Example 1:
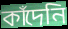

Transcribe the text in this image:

কাঁদেনি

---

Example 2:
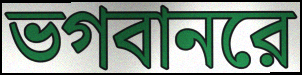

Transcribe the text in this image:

ভগবানরে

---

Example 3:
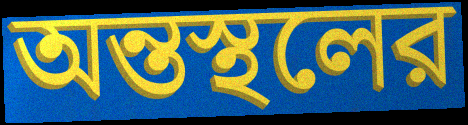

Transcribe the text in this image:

অন্তস্থলের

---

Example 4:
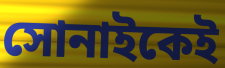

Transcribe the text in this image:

সোনাইকেই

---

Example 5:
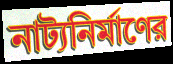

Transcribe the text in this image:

নাট্যনির্মাণের